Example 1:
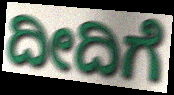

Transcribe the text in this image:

ದೀದಿಗೆ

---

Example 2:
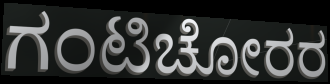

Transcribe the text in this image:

ಗಂಟಿಚೋರರ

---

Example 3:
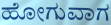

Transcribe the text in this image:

ಹೋಗುವಾಗ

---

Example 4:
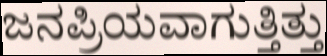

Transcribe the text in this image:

ಜನಪ್ರಿಯವಾಗುತ್ತಿತ್ತು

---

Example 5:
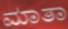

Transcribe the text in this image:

ಮಾತಾ